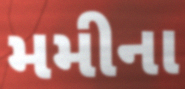
મમીના